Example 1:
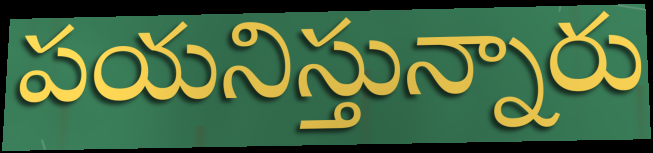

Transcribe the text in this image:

పయనిస్తున్నారు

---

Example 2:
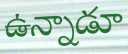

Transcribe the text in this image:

ఉన్నాడూ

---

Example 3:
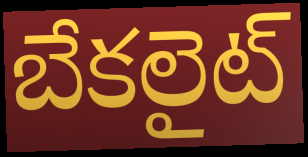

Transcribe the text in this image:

బేకలైట్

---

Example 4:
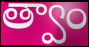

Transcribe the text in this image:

త్వాం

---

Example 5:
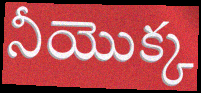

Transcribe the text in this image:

నీయొక్క